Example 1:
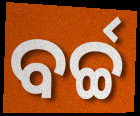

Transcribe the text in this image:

ବର୍ଚ୍ଚ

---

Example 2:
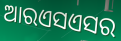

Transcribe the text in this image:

ଆରଏସଏସର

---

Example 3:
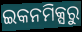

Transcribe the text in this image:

ଇକନମିକ୍ସରୁ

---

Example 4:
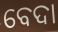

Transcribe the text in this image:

ବେଦା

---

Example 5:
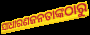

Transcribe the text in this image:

ସାଧାରଣଜନତାଙ୍କଠାରୁ